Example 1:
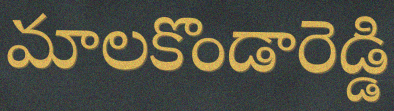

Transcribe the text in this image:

మాలకొండారెడ్డి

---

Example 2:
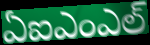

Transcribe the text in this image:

ఏఐఎంఎల్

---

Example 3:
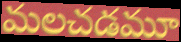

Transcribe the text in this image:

మలచడమూ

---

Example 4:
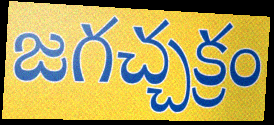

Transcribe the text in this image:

జగచ్చక్రం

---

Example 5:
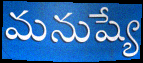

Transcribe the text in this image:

మనుష్యే